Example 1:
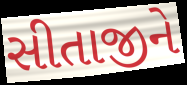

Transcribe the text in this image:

સીતાજીને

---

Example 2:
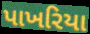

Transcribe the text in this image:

પાખરિયા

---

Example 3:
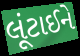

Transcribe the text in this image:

લૂંટાઈને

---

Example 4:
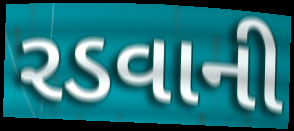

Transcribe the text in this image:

રડવાની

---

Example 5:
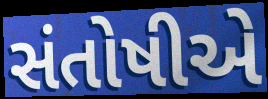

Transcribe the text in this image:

સંતોષીએ